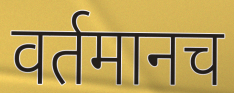
वर्तमानच